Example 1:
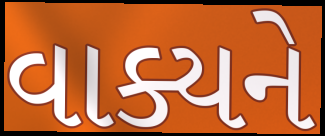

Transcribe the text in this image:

વાક્યને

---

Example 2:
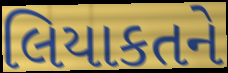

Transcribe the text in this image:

લિયાકતને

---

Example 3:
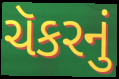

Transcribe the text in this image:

ચૅકરનું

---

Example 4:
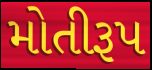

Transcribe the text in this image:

મોતીરૂપ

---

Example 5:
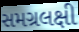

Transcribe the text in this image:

સમગ્રલક્ષી